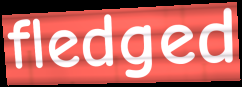
fledged